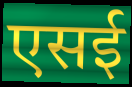
एसई